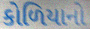
કોળિયાનો